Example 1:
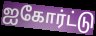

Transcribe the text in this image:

ஐகோர்ட்டு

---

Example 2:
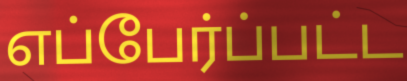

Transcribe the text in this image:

எப்பேர்ப்பட்ட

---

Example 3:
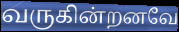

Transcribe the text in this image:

வருகின்றனவே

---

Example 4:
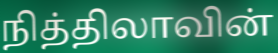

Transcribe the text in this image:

நித்திலாவின்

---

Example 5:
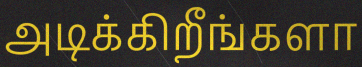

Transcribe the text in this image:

அடிக்கிறீங்களா